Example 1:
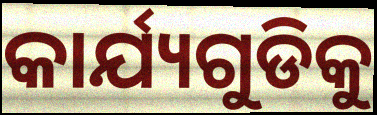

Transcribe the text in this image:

କାର୍ଯ୍ୟଗୁଡିକୁ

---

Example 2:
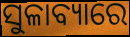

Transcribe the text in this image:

ସୁଳାବ୍ୟାରେ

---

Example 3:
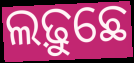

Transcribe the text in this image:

ଲଢ଼ୁଛେ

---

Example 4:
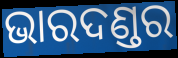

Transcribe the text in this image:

ଭାରଦଣ୍ଡର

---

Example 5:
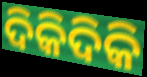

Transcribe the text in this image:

ଦିକିଦିକି